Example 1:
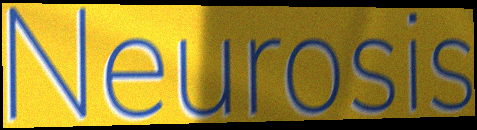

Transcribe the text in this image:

Neurosis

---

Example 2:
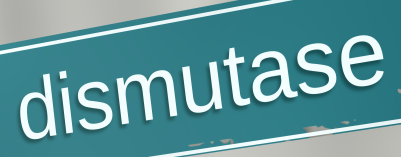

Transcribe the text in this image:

dismutase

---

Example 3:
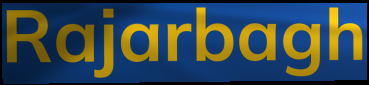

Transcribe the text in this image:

Rajarbagh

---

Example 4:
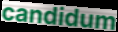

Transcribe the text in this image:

candidum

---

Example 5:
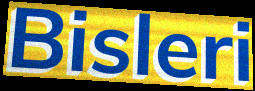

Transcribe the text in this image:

Bisleri